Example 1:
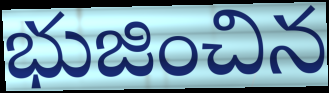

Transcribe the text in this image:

భుజించిన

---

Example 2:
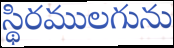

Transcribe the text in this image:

స్థిరములగును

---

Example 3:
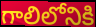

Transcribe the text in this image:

గాలిలోనికి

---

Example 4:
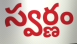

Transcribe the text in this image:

స్వర్ణం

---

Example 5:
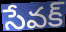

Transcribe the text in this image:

సేవక్